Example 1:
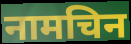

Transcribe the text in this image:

नामचिन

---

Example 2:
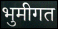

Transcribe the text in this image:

भुमीगत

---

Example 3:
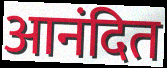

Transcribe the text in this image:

आनंदित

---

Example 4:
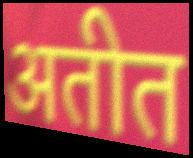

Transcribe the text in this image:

अतीत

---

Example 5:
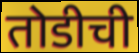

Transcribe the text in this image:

तोडीची